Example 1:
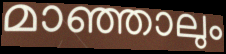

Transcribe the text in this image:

മാഞ്ഞാലും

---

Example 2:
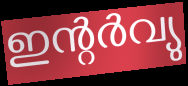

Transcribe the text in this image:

ഇന്റർവ്യു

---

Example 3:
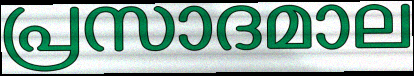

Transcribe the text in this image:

പ്രസാദമാല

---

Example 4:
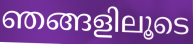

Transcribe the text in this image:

ഞങ്ങളിലൂടെ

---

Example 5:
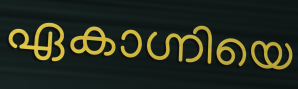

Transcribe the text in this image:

ഏകാഗ്നിയെ